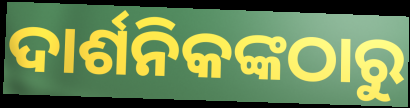
ଦାର୍ଶନିକଙ୍କଠାରୁ